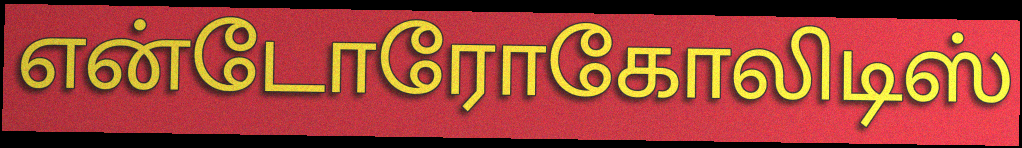
என்டோரோகோலிடிஸ்